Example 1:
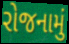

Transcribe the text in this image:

રોજનામું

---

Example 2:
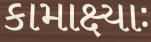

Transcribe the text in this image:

કામાક્ષ્યાઃ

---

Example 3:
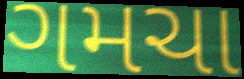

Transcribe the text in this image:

ગમચા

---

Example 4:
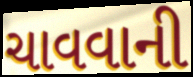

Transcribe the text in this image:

ચાવવાની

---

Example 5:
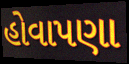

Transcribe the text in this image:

હોવાપણા